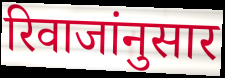
रिवाजांनुसार